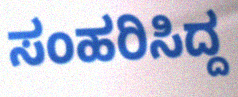
ಸಂಹರಿಸಿದ್ದ